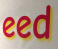
eed